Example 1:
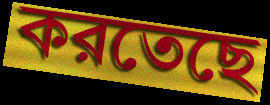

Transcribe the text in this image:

করতেছে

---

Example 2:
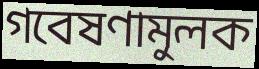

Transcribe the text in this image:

গবেষণামুলক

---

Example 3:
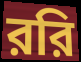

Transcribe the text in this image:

ররি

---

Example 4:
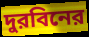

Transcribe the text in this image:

দুরবিনের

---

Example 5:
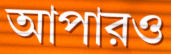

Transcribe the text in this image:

আপারও